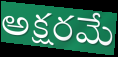
అక్షరమే